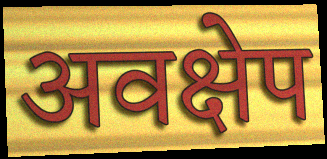
अवक्षेप